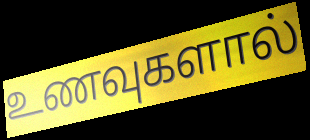
உணவுகளால்